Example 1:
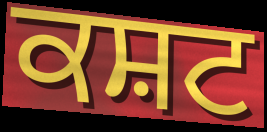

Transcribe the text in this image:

ਕਸ਼ਟ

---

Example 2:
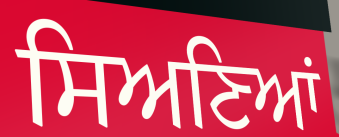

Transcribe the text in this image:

ਸਿਅਣਿਆਂ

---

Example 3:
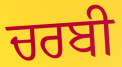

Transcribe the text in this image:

ਚਰਬੀ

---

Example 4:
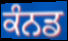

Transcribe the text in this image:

ਕੰਨਡ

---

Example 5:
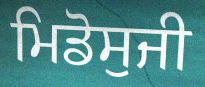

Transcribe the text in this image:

ਮਿਡੋਸੁਜੀ